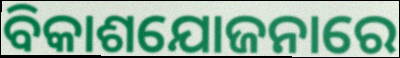
ବିକାଶଯୋଜନାରେ